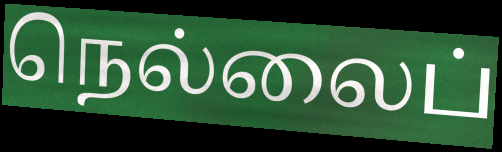
நெல்லைப்